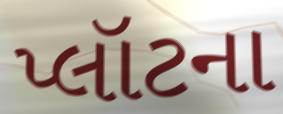
પ્લૉટના